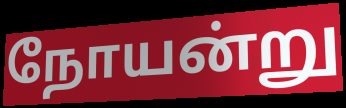
நோயன்று